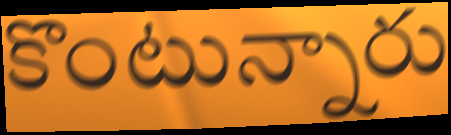
కొంటున్నారు